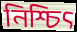
নিশ্চিৎ